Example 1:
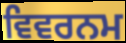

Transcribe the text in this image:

ਵਿਵਰਨਮ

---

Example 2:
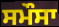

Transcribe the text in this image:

ਸਮੌਸਾ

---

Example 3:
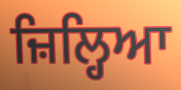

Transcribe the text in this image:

ਜ਼ਿਲ੍ਹਿਆ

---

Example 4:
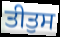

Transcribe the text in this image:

ਤੀਤੁਸ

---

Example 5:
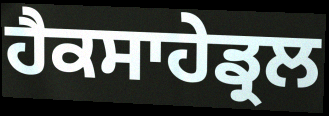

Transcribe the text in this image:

ਹੈਕਸਾਹੇਡ੍ਰਲ